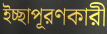
ইচ্ছাপূরণকারী